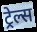
ट्रेल्स